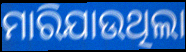
ମାରିଯାଉଥିଲା